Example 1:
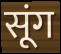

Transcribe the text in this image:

सूंग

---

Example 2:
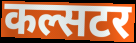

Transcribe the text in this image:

कल्सटर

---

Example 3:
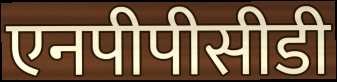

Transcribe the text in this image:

एनपीपीसीडी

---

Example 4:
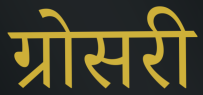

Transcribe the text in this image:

ग्रोसरी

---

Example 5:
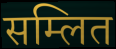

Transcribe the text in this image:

सम्लित